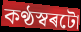
কণ্ঠস্বৰটো